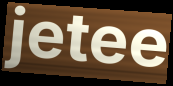
jetee